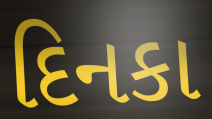
દિનકા